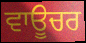
ਵਾਊਚਰ